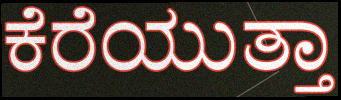
ಕೆರೆಯುತ್ತಾ